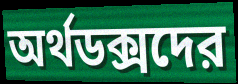
অর্থডক্সদের